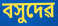
বসুদেৱ